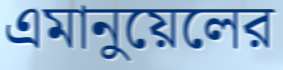
এমানুয়েলের